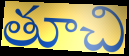
తూచి